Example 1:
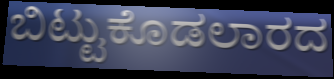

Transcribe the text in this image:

ಬಿಟ್ಟುಕೊಡಲಾರದ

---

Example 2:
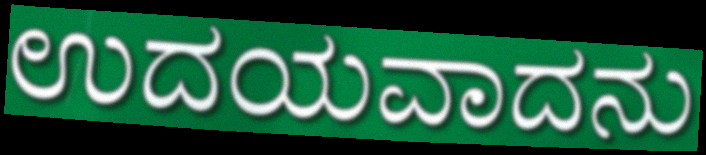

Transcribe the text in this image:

ಉದಯವಾದನು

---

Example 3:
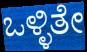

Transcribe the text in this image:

ಒಳ್ಳಿತೇ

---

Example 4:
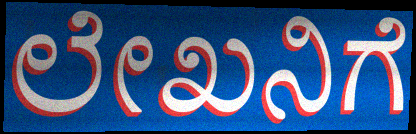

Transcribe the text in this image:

ಲೇಖನಿಗೆ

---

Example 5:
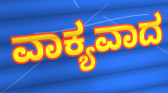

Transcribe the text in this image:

ವಾಕ್ಯವಾದ